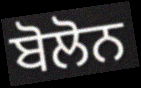
ਬੋਲੋਨ